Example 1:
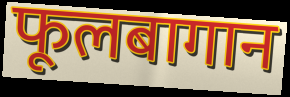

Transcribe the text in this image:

फूलबागान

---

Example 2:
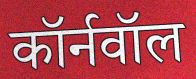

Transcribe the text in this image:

कॉर्नवॉल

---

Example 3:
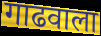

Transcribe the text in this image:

गाढवाला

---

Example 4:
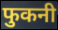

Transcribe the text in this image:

फुकनी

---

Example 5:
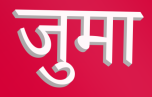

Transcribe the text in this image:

जुमा